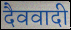
दैववादी